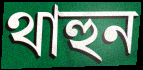
থাহুন